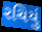
રચિયું